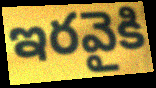
ఇరవైకి